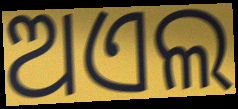
ଅଏଲ